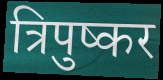
त्रिपुष्कर